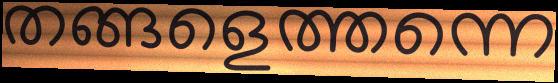
തങ്ങളെത്തന്നെ